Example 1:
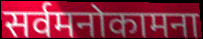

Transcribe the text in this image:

सर्वमनोकामना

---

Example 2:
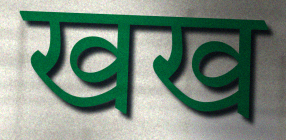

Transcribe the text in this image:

खख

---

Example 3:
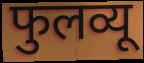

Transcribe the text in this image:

फुलव्यू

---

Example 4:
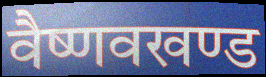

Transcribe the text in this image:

वैष्णवखण्ड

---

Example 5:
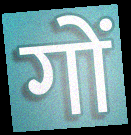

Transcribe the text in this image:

गों